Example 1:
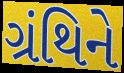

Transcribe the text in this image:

ગ્રંથિને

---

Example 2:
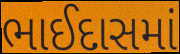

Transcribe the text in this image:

ભાઈદાસમાં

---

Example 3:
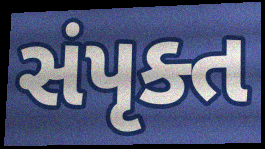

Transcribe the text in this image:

સંપૃક્ત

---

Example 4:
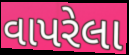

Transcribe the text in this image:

વાપરેલા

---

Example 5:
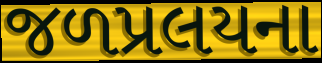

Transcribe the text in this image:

જળપ્રલયના